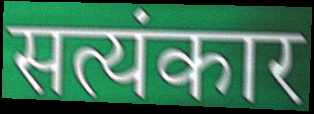
सत्यंकार